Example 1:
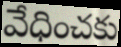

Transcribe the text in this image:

వేధించకు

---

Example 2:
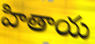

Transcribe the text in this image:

హితాయ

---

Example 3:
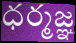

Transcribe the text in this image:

ధర్మజ్ఞ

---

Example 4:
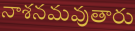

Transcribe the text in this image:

నాశనమవుతారు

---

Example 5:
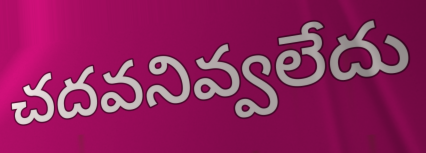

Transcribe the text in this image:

చదవనివ్వలేదు